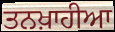
ਤਨਖ਼ਾਹੀਆ